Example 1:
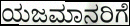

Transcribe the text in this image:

ಯಜಮಾನರಿಗೆ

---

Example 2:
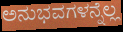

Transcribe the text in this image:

ಅನುಭವಗಳನ್ನೆಲ್ಲ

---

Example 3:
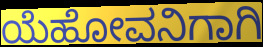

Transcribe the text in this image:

ಯೆಹೋವನಿಗಾಗಿ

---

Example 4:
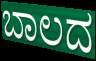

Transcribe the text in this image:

ಬಾಲದ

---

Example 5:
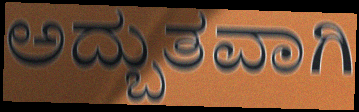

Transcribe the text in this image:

ಅದ್ಬುತವಾಗಿ